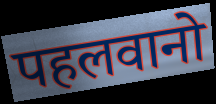
पहलवानो